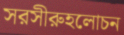
সরসীরুহলোচন